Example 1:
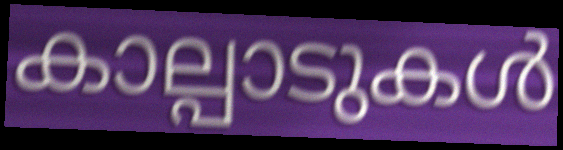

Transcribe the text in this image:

കാല്പാടുകൾ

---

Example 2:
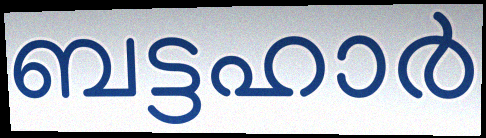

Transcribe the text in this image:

ബട്ടഹാർ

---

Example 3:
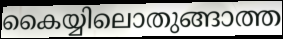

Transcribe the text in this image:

കൈയ്യിലൊതുങ്ങാത്ത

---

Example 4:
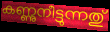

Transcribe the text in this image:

കണ്ണുനീട്ടുന്നതു്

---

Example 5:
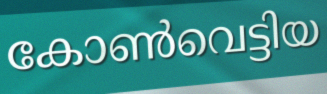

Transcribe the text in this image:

കോൺവെട്ടിയ